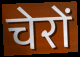
चेरों